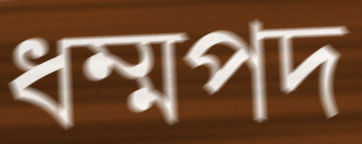
ধম্মপদ